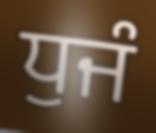
ਧੁਜੰ